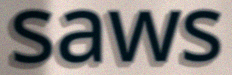
saws